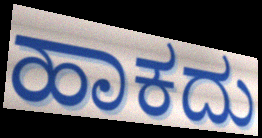
ಹಾಕದು